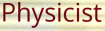
Physicist